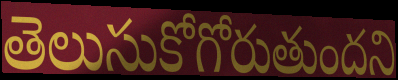
తెలుసుకోగోరుతుందని